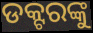
ଡକ୍ଟରଙ୍କୁ